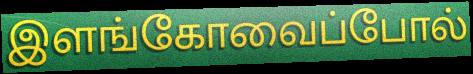
இளங்கோவைப்போல்